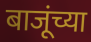
बाजूंच्या